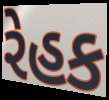
રેહક